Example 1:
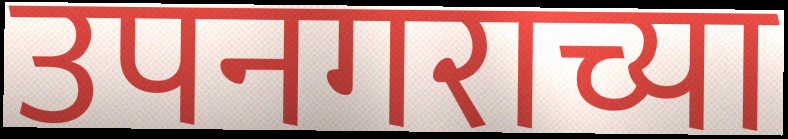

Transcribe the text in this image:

उपनगराच्या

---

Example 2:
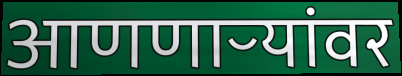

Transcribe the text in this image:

आणणाऱ्यांवर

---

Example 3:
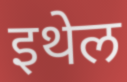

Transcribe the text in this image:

इथेल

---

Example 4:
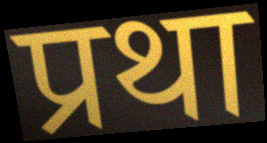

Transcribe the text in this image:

प्रथा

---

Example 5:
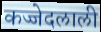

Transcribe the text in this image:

कज्जेदलाली